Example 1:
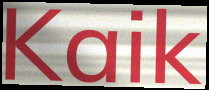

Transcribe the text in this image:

Kaik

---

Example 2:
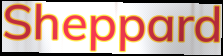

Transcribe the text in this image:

Sheppard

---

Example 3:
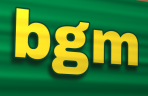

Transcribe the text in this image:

bgm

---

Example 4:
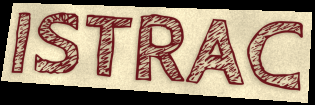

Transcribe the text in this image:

ISTRAC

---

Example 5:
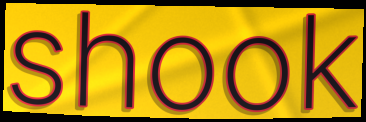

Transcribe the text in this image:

shook